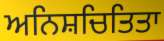
ਅਨਿਸ਼ਚਿਤਿਤਾ